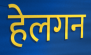
हेलगन